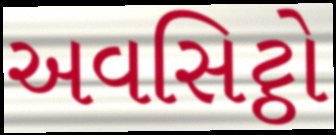
અવસિટ્ઠો